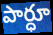
పార్ధూ